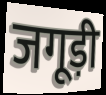
जगूड़ी